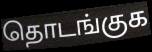
தொடங்குக